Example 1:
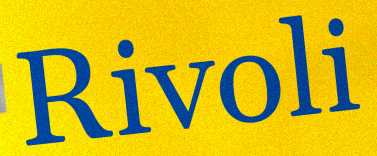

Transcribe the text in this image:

Rivoli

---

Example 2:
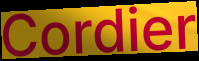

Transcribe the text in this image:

Cordier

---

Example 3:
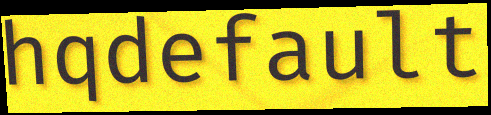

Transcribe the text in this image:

hqdefault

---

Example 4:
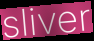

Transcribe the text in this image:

sliver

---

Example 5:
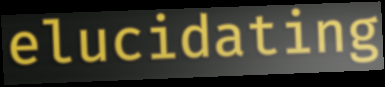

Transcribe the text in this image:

elucidating